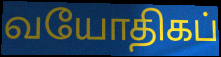
வயோதிகப்